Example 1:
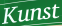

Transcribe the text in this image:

Kunst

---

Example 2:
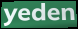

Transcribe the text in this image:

yeden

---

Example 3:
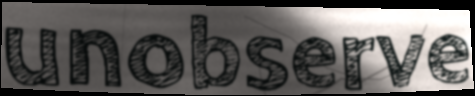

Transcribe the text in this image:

unobserve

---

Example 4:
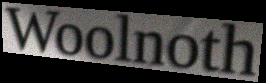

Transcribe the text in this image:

Woolnoth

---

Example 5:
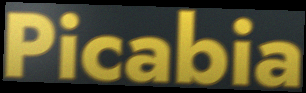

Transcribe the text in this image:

Picabia